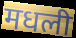
मधली